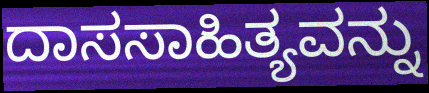
ದಾಸಸಾಹಿತ್ಯವನ್ನು